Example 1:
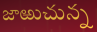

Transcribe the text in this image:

జాఱుచున్న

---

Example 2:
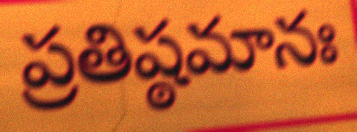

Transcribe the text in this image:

ప్రతిష్ఠమానః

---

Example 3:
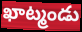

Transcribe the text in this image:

ఖాట్మండు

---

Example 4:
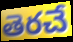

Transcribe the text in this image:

తెరచే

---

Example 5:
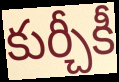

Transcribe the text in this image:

కుర్చీకీ